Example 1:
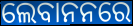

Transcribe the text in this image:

ଲେବାନନରେ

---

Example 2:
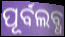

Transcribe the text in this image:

ପୂର୍ବଲବ୍ଧ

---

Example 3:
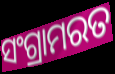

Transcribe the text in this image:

ସଂଗ୍ରାମରତ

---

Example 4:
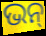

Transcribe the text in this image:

ଭନ୍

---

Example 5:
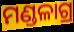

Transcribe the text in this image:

ମଣ୍ଡଳାଗ୍ର